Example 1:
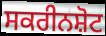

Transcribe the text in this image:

ਸਕਰੀਨਸ਼ੋਟ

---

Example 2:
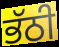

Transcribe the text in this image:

ਭੱਠੀ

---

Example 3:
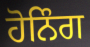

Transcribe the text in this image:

ਹੋਨਿੰਗ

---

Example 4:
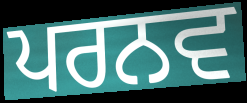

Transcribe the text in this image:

ਪਰਨਵ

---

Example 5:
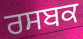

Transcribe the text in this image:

ਰਸਬਕ